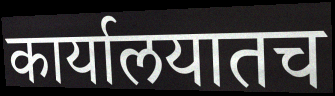
कार्यालयातच